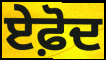
ਏਫ਼ੋਦ